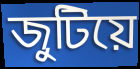
জুটিয়ে